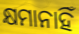
କ୍ଷମାନାହିଁ